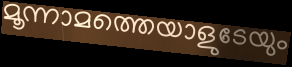
മൂന്നാമത്തെയാളുടേയും